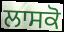
ਲਾਸਕੋ